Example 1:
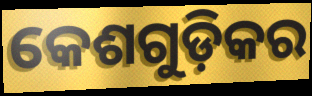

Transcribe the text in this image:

କେଶଗୁଡ଼ିକର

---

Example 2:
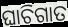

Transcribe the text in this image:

ଘାଚିଗାତ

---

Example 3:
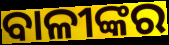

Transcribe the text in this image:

ବାଳୀଙ୍କର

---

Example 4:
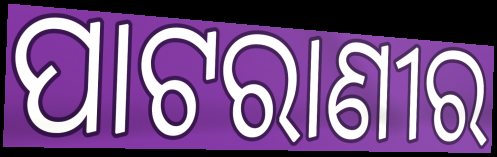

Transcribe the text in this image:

ପାଟରାଣୀର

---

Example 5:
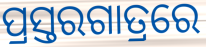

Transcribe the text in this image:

ପ୍ରସ୍ତରଗାତ୍ରରେ